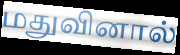
மதுவினால்